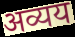
अव्यय